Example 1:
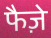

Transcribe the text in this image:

फैज़े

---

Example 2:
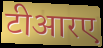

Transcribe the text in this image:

टीआरए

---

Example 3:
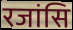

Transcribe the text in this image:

रजांसि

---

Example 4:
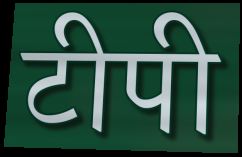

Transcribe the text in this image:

टीपी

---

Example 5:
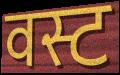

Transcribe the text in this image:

वस्ट